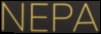
NEPA